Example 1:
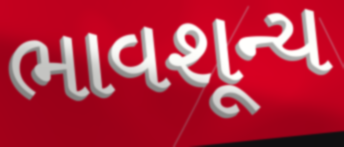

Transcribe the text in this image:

ભાવશૂન્ય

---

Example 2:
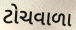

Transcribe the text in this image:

ટોચવાળા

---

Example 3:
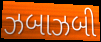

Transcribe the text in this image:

ઝબાઝબી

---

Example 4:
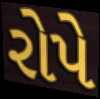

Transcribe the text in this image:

રોપે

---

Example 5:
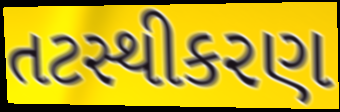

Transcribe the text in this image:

તટસ્થીકરણ